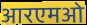
आरएमओ